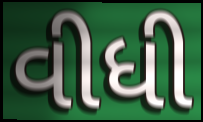
વીધી